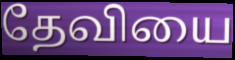
தேவியை